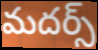
మదర్స్